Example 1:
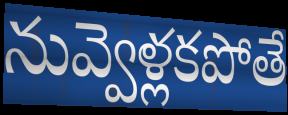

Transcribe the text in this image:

నువ్వెళ్లకపోతే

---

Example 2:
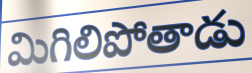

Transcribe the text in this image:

మిగిలిపోతాడు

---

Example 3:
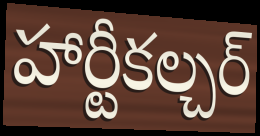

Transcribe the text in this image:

హార్టీకల్చర్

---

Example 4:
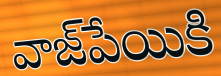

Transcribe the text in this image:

వాజ్‌పేయికి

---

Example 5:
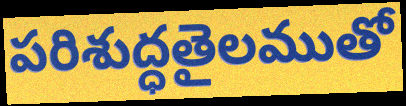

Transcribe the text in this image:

పరిశుద్ధతైలముతో